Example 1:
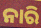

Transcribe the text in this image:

ନାରି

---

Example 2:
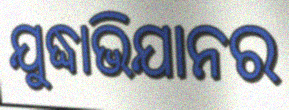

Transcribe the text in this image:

ଯୁଦ୍ଧାଭିଯାନର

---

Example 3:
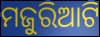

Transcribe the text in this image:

ମଜୁରିଆଟି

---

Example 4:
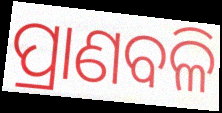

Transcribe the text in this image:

ପ୍ରାଣବଳି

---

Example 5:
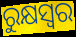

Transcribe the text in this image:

ରୁକ୍ଷସ୍ୱର